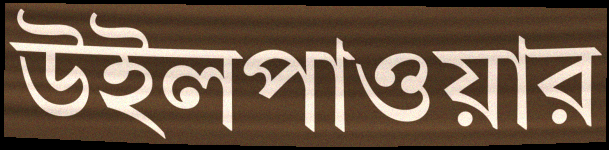
উইলপাওয়ার